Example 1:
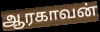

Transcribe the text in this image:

ஆரகாவன்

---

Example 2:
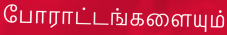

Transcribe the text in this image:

போராட்டங்களையும்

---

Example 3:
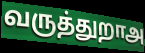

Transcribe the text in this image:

வருத்துறாஅ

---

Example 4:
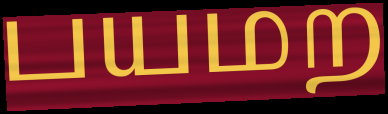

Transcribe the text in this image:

பயமற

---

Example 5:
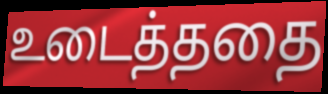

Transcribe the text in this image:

உடைத்ததை